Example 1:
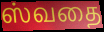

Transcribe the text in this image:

ஸ்வதை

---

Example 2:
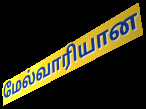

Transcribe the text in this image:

மேல்வாரியான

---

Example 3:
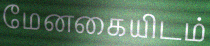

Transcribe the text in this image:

மேனகையிடம்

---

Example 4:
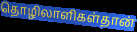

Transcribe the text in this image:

தொழிலாளிகள்தான்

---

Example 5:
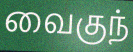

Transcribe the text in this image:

வைகுந்